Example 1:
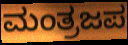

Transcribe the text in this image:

ಮಂತ್ರಜಪ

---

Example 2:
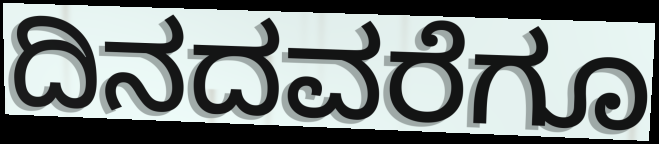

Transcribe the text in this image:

ದಿನದವರೆಗೂ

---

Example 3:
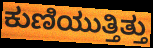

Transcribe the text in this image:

ಕುಣಿಯುತ್ತಿತ್ತು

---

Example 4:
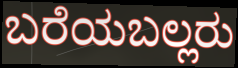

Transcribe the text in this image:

ಬರೆಯಬಲ್ಲರು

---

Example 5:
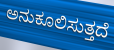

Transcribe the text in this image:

ಅನುಕೂಲಿಸುತ್ತದೆ